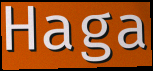
Haga